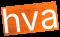
hva